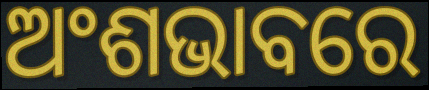
ଅଂଶଭାବରେ